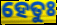
ହେତୁଃ